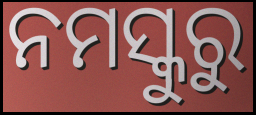
ନମସ୍କୁରୁ